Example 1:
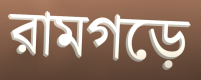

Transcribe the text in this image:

রামগড়ে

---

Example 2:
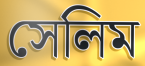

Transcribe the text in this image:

সেলিম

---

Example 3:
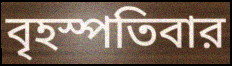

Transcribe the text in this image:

বৃহস্পতিবার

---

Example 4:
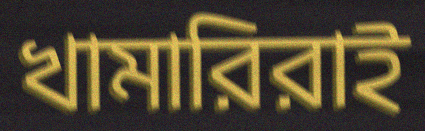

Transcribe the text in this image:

খামারিরাই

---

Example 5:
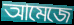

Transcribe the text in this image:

আমেজে